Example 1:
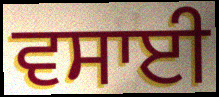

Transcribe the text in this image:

ਵਸਾਈ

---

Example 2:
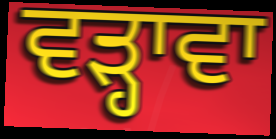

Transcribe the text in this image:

ਵੜ੍ਹਾਵਾ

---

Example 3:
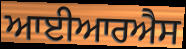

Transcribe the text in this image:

ਆਈਆਰਐਸ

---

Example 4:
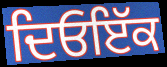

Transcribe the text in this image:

ਦਿਓਇੱਕ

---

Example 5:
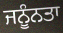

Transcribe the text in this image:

ਜਨੂੰਨਤਾ